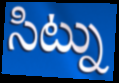
సిట్ను